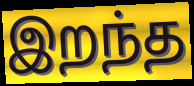
இறந்த